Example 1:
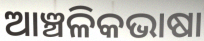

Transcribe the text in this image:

ଆଞ୍ଚଳିକଭାଷା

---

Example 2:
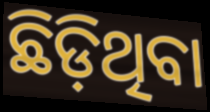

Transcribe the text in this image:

ଛିଡ଼ିଥିବା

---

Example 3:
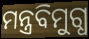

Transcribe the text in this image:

ମନ୍ତ୍ରବିମୁଗ୍ଧ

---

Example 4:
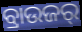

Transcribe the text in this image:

ବ୍ରାଉଜର୍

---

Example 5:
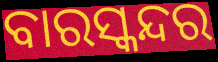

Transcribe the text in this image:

ବାରସ୍କନ୍ଦର